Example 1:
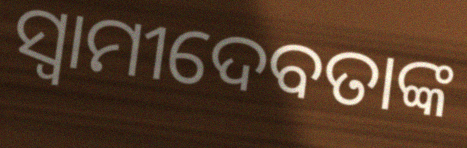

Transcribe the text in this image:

ସ୍ୱାମୀଦେବତାଙ୍କ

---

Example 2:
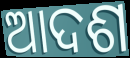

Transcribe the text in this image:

ଆଦଶ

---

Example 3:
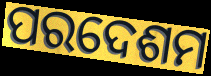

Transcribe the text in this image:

ପରଦେଶମ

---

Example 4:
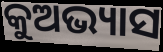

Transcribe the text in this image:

କୁଅଭ୍ୟାସ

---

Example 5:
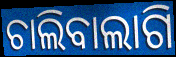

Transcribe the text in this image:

ଚାଲିବାଲାଗି